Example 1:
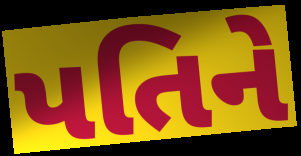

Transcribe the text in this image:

પતિને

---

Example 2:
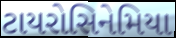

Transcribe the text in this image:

ટાયરોસિનેમિયા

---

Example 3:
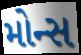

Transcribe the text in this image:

મોન્સ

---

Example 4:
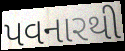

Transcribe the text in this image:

પવનારથી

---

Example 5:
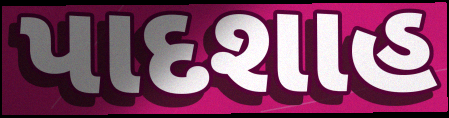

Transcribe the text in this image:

પાદશાહ